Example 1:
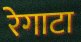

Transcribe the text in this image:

रेगाटा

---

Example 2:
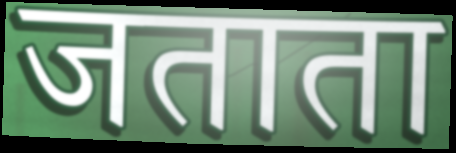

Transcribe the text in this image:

जताता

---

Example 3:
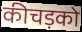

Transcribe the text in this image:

कीचड़को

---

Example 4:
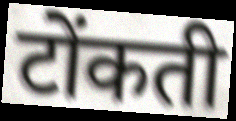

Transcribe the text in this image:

टोंकती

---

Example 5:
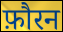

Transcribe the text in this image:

फ़ौरन